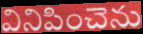
వినిపించెను